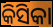
କିସିକା